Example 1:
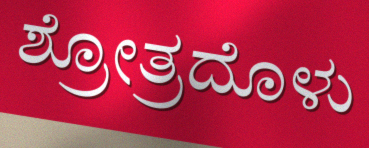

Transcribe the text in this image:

ಶ್ರೋತ್ರದೊಳು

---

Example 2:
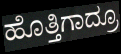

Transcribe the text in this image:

ಹೊತ್ತಿಗಾದ್ರೂ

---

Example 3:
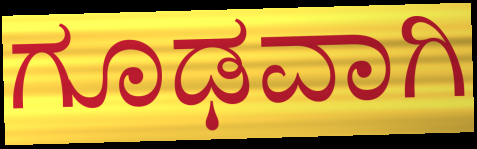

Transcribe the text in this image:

ಗೂಢವಾಗಿ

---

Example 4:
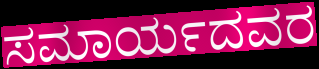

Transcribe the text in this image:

ಸಮಾರ್ಯದವರ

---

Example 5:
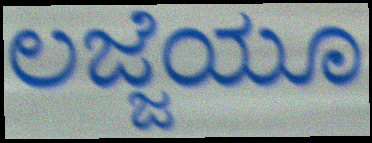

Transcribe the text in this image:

ಲಜ್ಜೆಯೂ